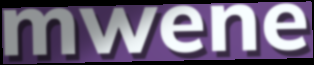
mwene